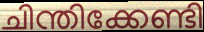
ചിന്തിക്കേണ്ടി